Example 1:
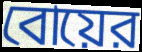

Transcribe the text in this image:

বোয়ের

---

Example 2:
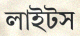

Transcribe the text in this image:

লাইটস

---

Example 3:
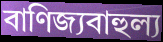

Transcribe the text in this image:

বাণিজ্যবাহুল্য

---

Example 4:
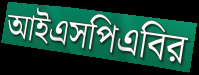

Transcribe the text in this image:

আইএসপিএবির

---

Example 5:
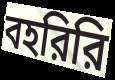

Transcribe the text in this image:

বহরিরি